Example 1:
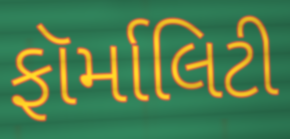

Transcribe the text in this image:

ફૉર્માલિટી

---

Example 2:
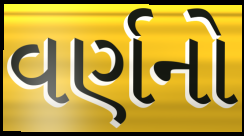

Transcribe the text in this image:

વર્ણનો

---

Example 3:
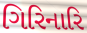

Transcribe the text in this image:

ગિરિનારિ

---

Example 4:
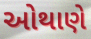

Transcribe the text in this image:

ઓથાણે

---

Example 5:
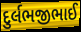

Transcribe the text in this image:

દુર્લભજીભાઈ